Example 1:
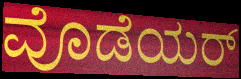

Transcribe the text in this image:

ವೊಡೆಯರ್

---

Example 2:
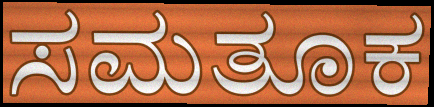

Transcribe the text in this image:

ಸಮತೂಕ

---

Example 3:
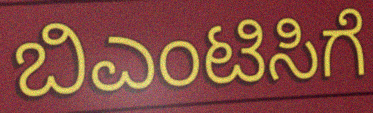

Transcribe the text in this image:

ಬಿಎಂಟಿಸಿಗೆ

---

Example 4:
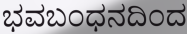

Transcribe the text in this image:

ಭವಬಂಧನದಿಂದ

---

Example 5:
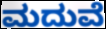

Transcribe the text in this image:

ಮದುವೆ